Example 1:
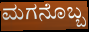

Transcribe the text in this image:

ಮಗನೊಬ್ಬ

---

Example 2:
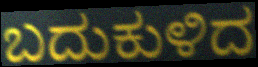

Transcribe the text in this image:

ಬದುಕುಳಿದ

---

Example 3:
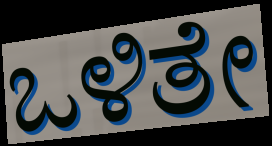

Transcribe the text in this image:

ಒಳಿತೇ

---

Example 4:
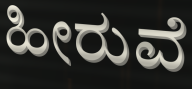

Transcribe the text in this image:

ಹೀರುವೆ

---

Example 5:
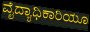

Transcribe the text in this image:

ವೈದ್ಯಾಧಿಕಾರಿಯೂ